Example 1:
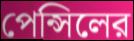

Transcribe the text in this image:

পেন্সিলের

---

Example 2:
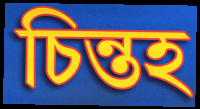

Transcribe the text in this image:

চিন্তহ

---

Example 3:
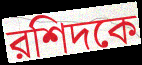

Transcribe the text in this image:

রশিদকে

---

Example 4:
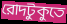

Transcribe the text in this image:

রোদটুকুতে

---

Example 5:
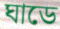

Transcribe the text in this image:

ঘাডে